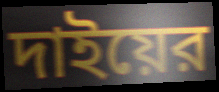
দাইয়ের